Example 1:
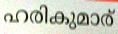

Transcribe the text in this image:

ഹരികുമാര്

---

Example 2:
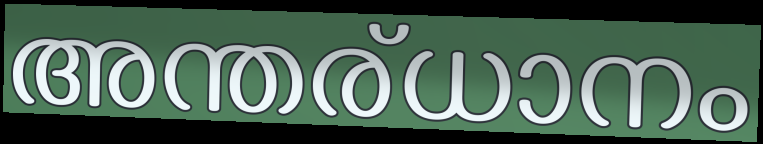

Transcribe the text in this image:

അന്തര്ധാനം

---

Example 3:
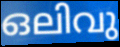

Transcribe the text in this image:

ഒലിവു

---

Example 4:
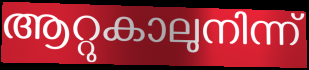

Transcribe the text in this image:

ആറ്റുകാലുനിന്ന്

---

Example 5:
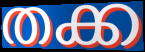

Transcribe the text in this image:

തക്ക